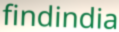
findindia